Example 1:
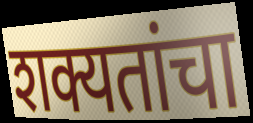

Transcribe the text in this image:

शक्यतांचा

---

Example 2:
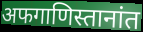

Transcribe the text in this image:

अफगाणिस्तानांत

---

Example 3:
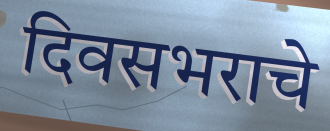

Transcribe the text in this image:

दिवसभराचे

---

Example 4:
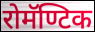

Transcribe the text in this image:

रोमॅण्टिक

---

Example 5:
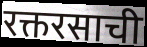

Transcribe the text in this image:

रक्तरसाची